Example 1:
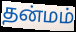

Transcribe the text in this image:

தன்மம்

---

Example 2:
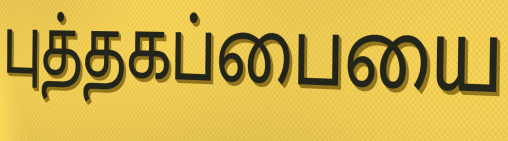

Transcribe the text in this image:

புத்தகப்பையை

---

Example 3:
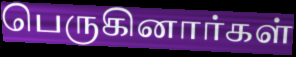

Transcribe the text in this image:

பெருகினார்கள்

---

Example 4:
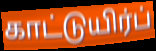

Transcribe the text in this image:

காட்டுயிர்ப்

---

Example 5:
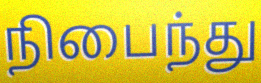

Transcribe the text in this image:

நிபைந்து